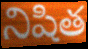
నిషిత